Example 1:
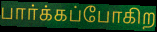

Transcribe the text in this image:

பார்க்கப்போகிற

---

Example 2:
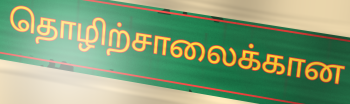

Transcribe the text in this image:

தொழிற்சாலைக்கான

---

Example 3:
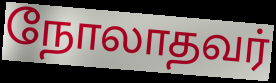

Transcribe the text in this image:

நோலாதவர்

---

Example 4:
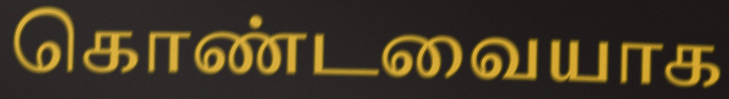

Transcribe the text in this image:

கொண்டவையாக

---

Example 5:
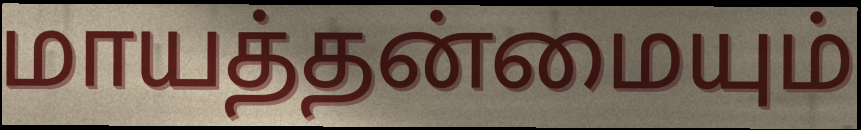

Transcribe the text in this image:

மாயத்தன்மையும்